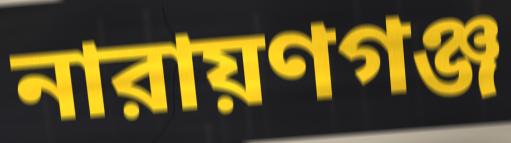
নারায়ণগঞ্জ